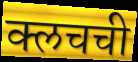
क्लचची